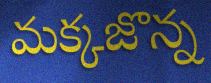
మక్కజొన్న